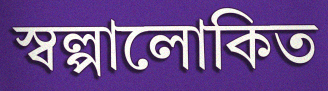
স্বল্পালোকিত